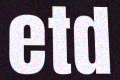
etd